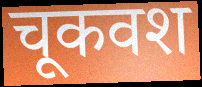
चूकवश